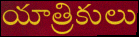
యాత్రికులు